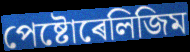
পেষ্টোৰেলিজিম